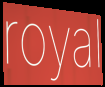
royal